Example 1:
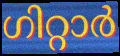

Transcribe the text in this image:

ഗിറ്റാർ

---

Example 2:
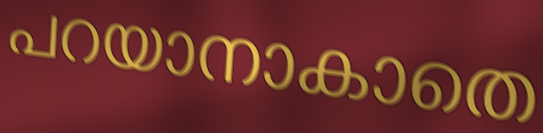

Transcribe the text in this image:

പറയാനാകാതെ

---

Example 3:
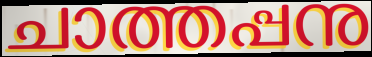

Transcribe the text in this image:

ചാത്തപ്പനു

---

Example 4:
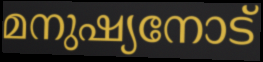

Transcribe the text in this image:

മനുഷ്യനോട്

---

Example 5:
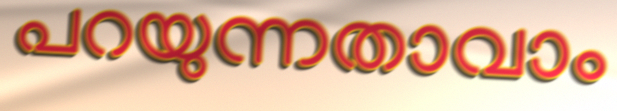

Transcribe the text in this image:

പറയുന്നതാവാം